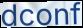
dconf